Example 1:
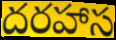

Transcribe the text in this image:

దరహాస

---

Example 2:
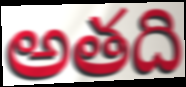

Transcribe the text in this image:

అతది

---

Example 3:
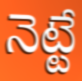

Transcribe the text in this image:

నెట్టే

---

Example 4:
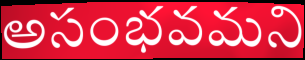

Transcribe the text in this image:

అసంభవమని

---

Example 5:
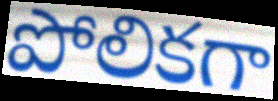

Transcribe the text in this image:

పోలికగా